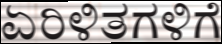
ಏರಿಳಿತಗಳಿಗೆ